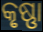
କୃଷ୍ଣା